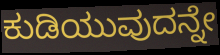
ಕುಡಿಯುವುದನ್ನೇ